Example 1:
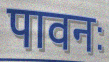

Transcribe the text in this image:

पावनः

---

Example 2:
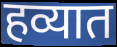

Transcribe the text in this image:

हव्‍यात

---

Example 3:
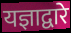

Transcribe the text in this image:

यज्ञाद्वारे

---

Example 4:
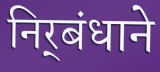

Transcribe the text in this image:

निर्बंधाने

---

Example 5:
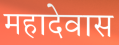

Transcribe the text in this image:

महादेवास